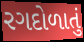
રગદોળાતું